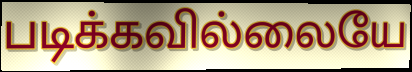
படிக்கவில்லையே